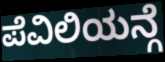
ಪೆವಿಲಿಯನ್ಗೆ